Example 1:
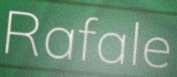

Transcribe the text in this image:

Rafale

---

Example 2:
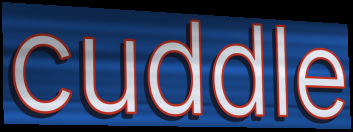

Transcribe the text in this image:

cuddle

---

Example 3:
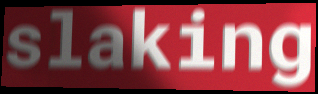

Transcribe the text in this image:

slaking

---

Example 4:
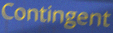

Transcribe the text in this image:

Contingent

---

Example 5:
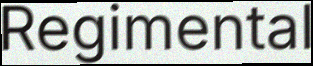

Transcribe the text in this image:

Regimental